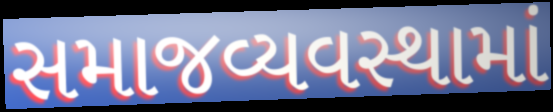
સમાજવ્યવસ્થામાં